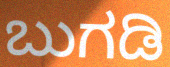
ಬುಗಡಿ